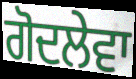
ਗੋਦਲੇਵਾ